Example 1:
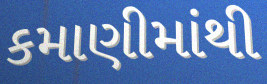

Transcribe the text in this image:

કમાણીમાંથી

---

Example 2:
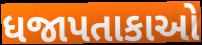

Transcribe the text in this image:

ધજાપતાકાઓ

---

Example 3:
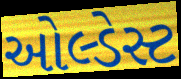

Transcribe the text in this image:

ઓલ્ડેસ્ટ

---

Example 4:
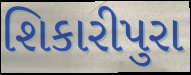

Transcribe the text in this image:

શિકારીપુરા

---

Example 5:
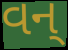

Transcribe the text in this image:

વન્